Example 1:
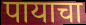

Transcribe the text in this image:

पायाचा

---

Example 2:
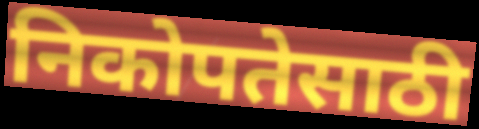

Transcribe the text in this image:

निकोपतेसाठी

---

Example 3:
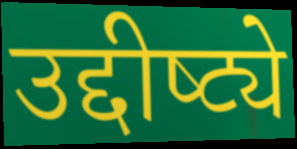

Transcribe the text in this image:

उद्दीष्ट्ये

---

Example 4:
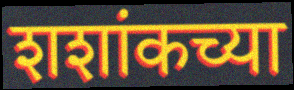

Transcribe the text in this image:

शशांकच्या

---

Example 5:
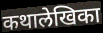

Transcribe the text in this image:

कथालेखिका